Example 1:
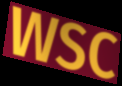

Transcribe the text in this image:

WSC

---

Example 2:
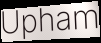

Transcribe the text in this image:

Upham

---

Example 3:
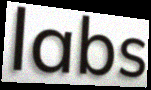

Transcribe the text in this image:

labs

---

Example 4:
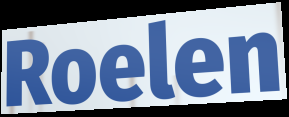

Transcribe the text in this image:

Roelen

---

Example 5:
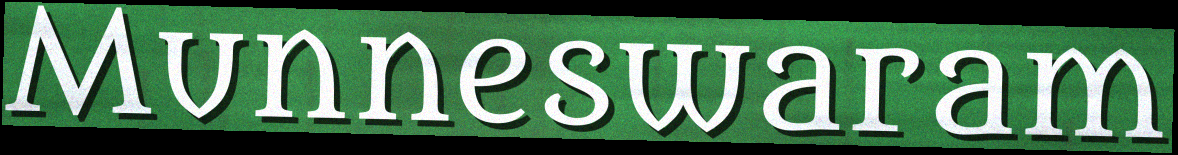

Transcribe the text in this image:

Munneswaram